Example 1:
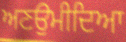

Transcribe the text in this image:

ਅਣਉਮੀਦਿਆ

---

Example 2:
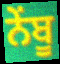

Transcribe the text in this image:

ਨੇਂਬੂ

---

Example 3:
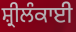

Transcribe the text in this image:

ਸ਼੍ਰੀਲੰਕਾਈ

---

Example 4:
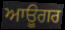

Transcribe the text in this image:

ਆਊਗਰ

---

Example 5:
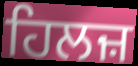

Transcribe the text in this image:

ਹਿਲਜ਼